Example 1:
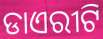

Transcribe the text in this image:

ଡାଏରୀଟି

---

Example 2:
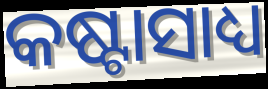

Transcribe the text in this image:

କଷ୍ଟାସାଧ୍ୟ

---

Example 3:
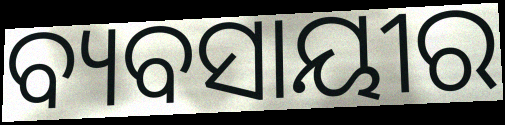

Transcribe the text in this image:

ବ୍ୟବସାୟୀର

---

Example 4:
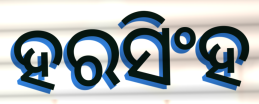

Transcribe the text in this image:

ହରସିଂହ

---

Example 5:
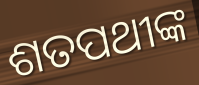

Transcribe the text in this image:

ଶତପଥୀଙ୍କ